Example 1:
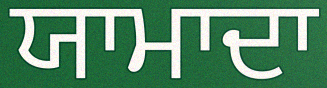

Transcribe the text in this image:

ਯਾਮਾਦਾ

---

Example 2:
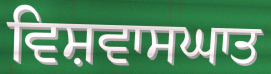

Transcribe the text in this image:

ਵਿਸ਼ਵਾਸਘਾਤ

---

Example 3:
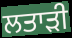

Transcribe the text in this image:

ਲਤਾੜੀ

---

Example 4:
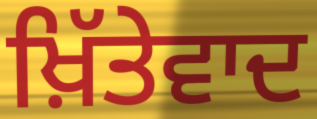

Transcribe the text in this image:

ਖ਼ਿੱਤੇਵਾਦ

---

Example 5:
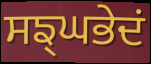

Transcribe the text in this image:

ਸਙ੍ਘਭੇਦਂ